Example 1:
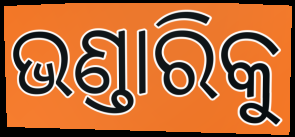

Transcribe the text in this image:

ଭଣ୍ଡାରିକୁ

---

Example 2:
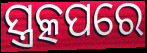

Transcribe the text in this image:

ସ୍ତ୍ରତ୍କପରେ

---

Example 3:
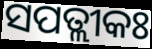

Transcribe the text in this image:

ସପତ୍ଲୀକଃ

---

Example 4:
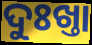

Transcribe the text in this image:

ଦୁଃଖ୍ତା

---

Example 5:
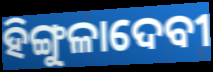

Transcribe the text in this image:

ହିଙ୍ଗୁଳାଦେବୀ